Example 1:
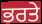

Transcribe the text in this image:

ਭਰਤੇ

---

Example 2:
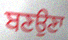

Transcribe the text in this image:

ਬਣਉਣਾ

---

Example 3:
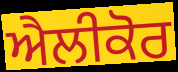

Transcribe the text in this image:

ਐਲੀਕੋਰ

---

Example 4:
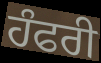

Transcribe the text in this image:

ਹੰਫਰੀ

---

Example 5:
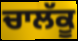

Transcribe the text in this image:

ਚਾਲੱਕੂ